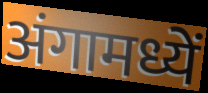
अंगामध्यें